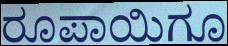
ರೂಪಾಯಿಗೂ